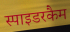
स्पाइडरकैम